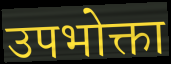
उपभोक्ता